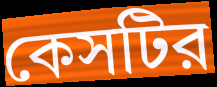
কেসটির